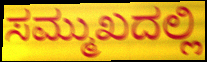
ಸಮ್ಮುಖದಲ್ಲಿ